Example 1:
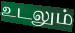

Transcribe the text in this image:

உடலும்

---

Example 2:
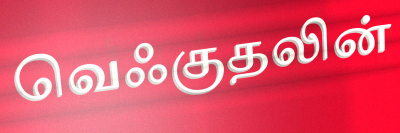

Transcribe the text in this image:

வெஃகுதலின்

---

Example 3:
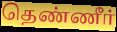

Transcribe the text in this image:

தெண்ணீர்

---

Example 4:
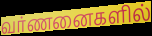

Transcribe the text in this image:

வர்ணனைகளில்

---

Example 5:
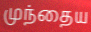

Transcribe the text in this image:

முந்தைய